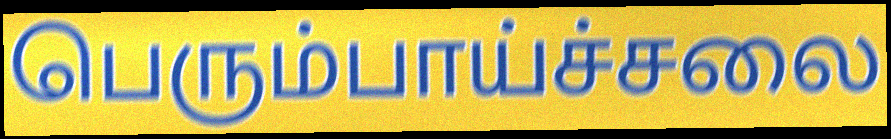
பெரும்பாய்ச்சலை